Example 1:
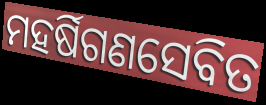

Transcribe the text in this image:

ମହର୍ଷିଗଣସେବିତ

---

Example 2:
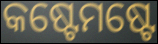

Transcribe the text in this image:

କଷ୍ଟେମଷ୍ଟେ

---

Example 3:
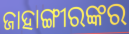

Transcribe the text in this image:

ଜାହାଙ୍ଗୀରଙ୍କର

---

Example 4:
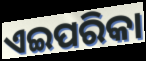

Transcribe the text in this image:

ଏଇପରିକା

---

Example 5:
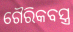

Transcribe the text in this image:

ଗୈରିକବସ୍ତ୍ର